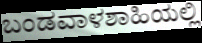
ಬಂಡವಾಳಶಾಹಿಯಲ್ಲಿ